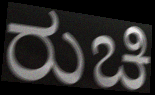
ರುಚಿ